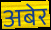
अबेर